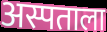
अस्पताला